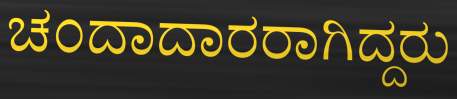
ಚಂದಾದಾರರಾಗಿದ್ದರು